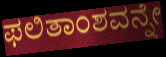
ಫಲಿತಾಂಶವನ್ನೇ